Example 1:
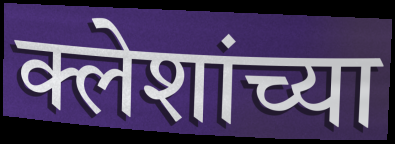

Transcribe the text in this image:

क्लेशांच्या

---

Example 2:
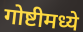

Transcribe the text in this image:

गोष्टीमध्ये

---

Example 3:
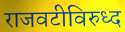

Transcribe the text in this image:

राजवटीविरुध्द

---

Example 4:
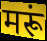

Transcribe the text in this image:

मरूं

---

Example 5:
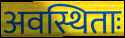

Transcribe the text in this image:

अवस्थिताः